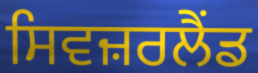
ਸਿਵਜ਼ਰਲੈਂਡ